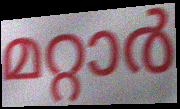
മറ്റാർ